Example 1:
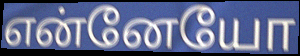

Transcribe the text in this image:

என்னேயோ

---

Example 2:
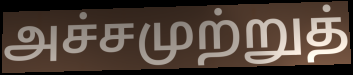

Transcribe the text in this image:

அச்சமுற்றுத்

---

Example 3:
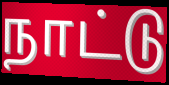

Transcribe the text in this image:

நாட்டு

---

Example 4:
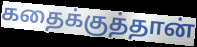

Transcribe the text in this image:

கதைக்குத்தான்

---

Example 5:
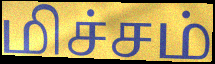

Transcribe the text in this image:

மிச்சம்